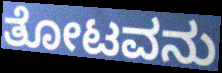
ತೋಟವನು